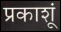
प्रकाशूं